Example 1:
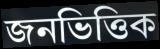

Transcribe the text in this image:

জনভিত্তিক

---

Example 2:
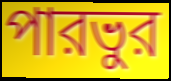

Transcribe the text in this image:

পারভুর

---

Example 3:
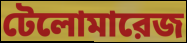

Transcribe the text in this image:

টেলোমারেজ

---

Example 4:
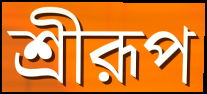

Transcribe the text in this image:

শ্রীরূপ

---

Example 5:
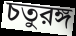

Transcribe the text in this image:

চতুরঙ্গ